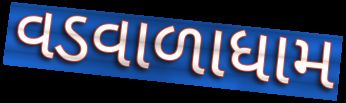
વડવાળાધામ